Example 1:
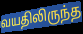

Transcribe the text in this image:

வயதிலிருந்த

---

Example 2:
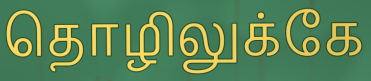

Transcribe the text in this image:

தொழிலுக்கே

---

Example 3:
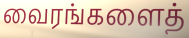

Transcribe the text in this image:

வைரங்களைத்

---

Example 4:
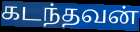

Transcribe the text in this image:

கடந்தவன்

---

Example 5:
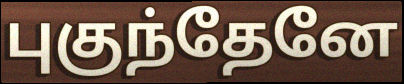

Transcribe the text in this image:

புகுந்தேனே